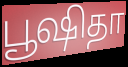
பூஷிதா